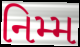
નિમ્મ